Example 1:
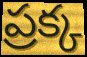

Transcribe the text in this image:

ప్రక్క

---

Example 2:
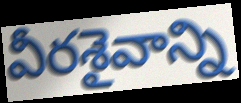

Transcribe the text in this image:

వీరశైవాన్ని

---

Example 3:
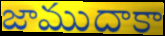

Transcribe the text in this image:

జాముదాకా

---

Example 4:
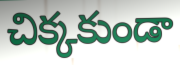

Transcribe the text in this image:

చిక్కకుండా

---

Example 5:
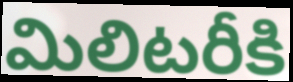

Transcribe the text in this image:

మిలిటరీకి